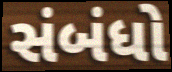
સંબંધો